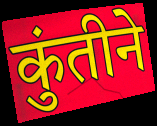
कुंतीने